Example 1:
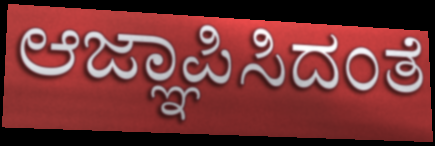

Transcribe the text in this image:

ಆಜ್ಞಾಪಿಸಿದಂತೆ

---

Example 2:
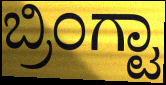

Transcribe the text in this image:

ಬ್ರಿಂಗ್ಟಾ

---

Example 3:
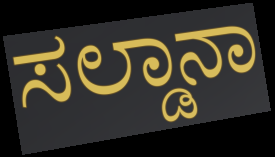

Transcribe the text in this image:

ಸಲ್ಡಾನಾ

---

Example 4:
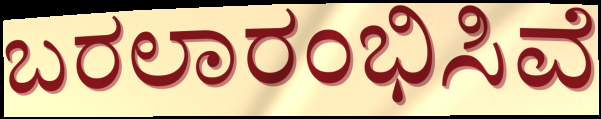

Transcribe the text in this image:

ಬರಲಾರಂಭಿಸಿವೆ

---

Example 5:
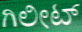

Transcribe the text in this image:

ಗಿಲೀಟ್